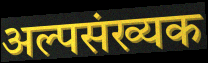
अल्‍पसंख्‍यक